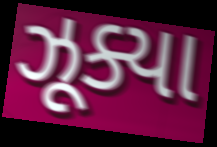
ઝૂક્યા